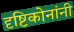
दृष्टिकोनांनी